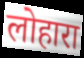
लोहारा